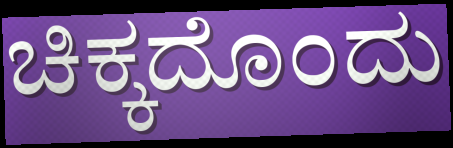
ಚಿಕ್ಕದೊಂದು